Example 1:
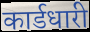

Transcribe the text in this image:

कार्डधारी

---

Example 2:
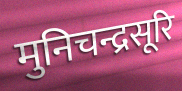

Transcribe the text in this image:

मुनिचन्द्रसूरि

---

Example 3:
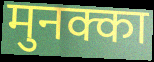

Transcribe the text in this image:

मुनक्का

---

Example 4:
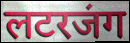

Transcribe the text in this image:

लटरजंग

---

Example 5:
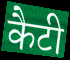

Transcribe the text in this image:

कैटी